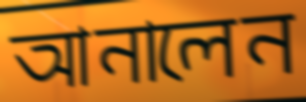
আনালেন